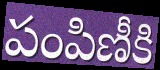
పంపిణీకి